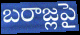
బరాజ్లపై